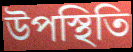
উপস্থিতি